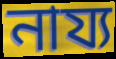
নায্য